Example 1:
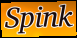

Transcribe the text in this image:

Spink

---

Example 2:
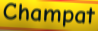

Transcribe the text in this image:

Champat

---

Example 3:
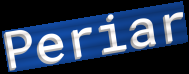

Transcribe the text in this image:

Periar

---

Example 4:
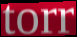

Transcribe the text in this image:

torr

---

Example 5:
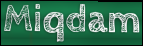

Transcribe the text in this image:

Miqdam